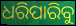
ଧରିପାରିବୁ